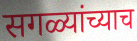
सगळ्यांच्याच